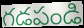
గడపండి